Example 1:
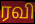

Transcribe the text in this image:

ரவி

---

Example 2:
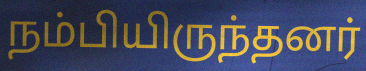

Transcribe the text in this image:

நம்பியிருந்தனர்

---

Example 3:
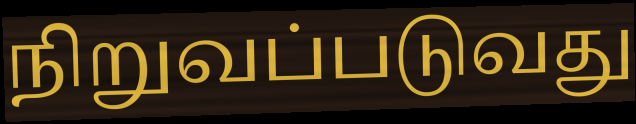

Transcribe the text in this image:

நிறுவப்படுவது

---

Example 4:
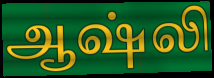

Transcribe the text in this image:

ஆஷ்லி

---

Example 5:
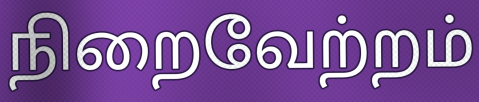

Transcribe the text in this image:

நிறைவேற்றம்